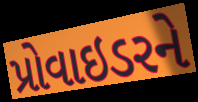
પ્રોવાઇડરને